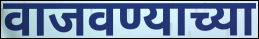
वाजवण्याच्या